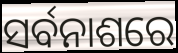
ସର୍ବନାଶରେ